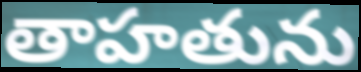
తాహతును